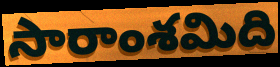
సారాంశమిది